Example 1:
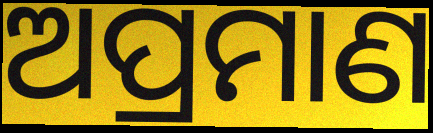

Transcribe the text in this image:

ଅପ୍ରମାଣ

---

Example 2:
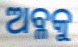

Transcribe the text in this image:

ଅବ୍ଳକୁ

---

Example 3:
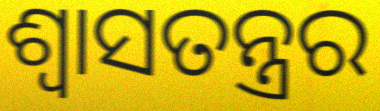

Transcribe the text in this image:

ଶ୍ଵାସତନ୍ତ୍ରର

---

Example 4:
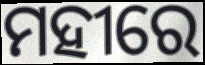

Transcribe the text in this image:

ମହୀରେ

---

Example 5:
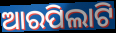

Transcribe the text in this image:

ଆରପିଲାଟି